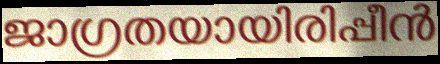
ജാഗ്രതയായിരിപ്പീൻ